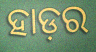
ହାଡ଼ର